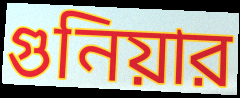
গুনিয়ার